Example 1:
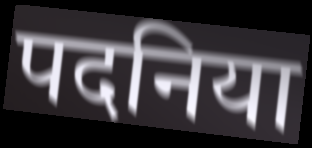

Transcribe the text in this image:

पदनिया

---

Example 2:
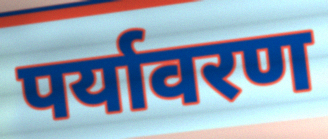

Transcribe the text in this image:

पर्यावरण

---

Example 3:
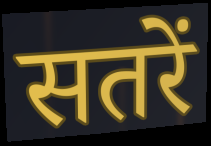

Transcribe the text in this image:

सतरें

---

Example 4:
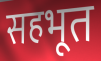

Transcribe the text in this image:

सहभूत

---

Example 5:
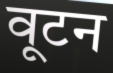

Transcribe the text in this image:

वूटन